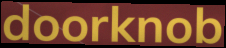
doorknob